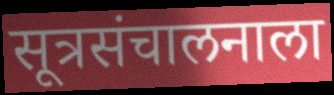
सूत्रसंचालनाला